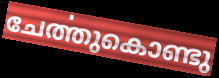
ചേൎത്തുകൊണ്ടു